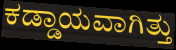
ಕಡ್ಡಾಯವಾಗಿತ್ತು